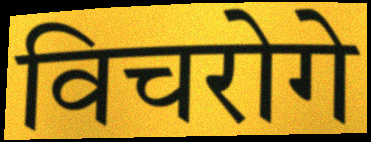
विचरोगे